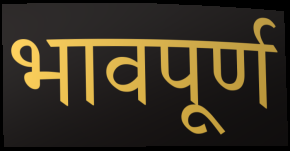
भावपूर्ण